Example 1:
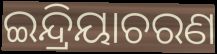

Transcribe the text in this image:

ଇନ୍ଦ୍ରିୟାଚରଣ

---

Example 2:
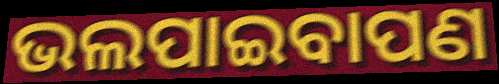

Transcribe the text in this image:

ଭଲପାଇବାପଣ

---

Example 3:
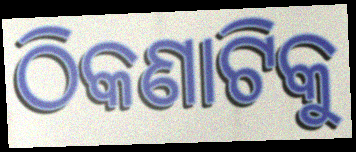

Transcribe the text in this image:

ଠିକଣାଟିକୁ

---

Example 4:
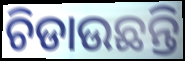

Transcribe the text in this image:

ଚିଡାଉଛନ୍ତି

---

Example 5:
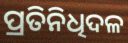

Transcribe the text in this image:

ପ୍ରତିନିଧିଦଳ